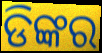
ଡିଙ୍କର